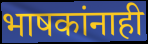
भाषकांनाही